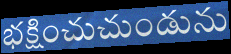
భక్షించుచుండును